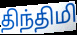
திந்திமி